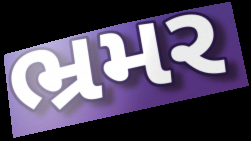
ભ્રમર